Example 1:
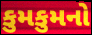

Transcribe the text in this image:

કુમકુમનો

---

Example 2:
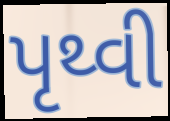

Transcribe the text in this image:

પૃથ્વી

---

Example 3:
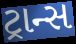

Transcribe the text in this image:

ટ્રાન્સ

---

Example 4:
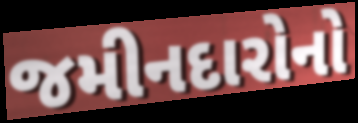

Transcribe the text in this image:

જમીનદારોનો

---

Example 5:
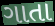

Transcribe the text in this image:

ગાતા